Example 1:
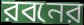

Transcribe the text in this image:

রবনের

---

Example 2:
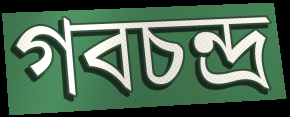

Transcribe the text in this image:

গবচন্দ্র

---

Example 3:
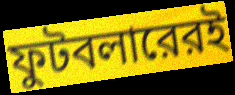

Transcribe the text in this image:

ফুটবলারেরই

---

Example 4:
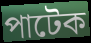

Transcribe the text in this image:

পাটেক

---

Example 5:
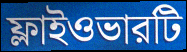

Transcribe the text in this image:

ফ্লাইওভারটি